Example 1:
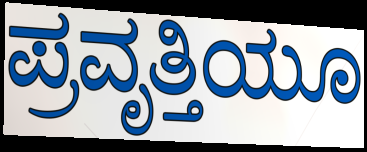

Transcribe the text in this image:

ಪ್ರವೃತ್ತಿಯೂ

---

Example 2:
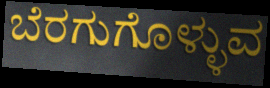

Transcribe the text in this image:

ಬೆರಗುಗೊಳ್ಳುವ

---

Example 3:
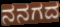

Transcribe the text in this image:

ನನಗದ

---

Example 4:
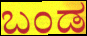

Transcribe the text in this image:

ಬಂಡ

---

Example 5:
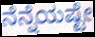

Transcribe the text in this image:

ನೆನ್ನೆಯಷ್ಟೇ